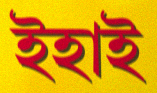
ইহাই